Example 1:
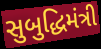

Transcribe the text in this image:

સુબુદ્ધિમંત્રી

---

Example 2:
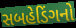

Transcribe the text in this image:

સબહેડિંગનો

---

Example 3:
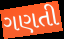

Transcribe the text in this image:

ગણતી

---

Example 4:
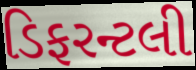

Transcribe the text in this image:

ડિફરન્ટલી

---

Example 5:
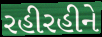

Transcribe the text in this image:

રહીરહીને